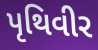
પૃથિવીર